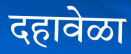
दहावेळा